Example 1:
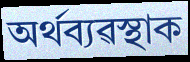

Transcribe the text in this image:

অৰ্থব্যৱস্থাক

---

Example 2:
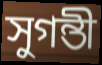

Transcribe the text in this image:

সুগন্তী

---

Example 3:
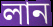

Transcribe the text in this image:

লান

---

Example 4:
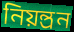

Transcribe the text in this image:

নিয়ন্ত্ৰন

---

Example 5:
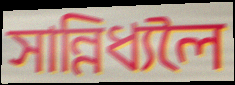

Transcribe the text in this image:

সান্নিধ্যলৈ